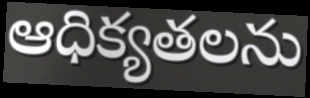
ఆధిక్యతలను